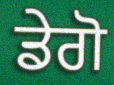
ਡੇਗੋ